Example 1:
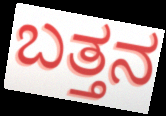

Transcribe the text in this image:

ಬತ್ತನ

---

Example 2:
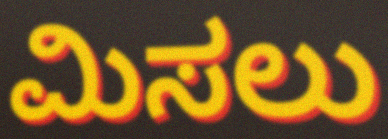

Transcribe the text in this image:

ಮಿಸಲು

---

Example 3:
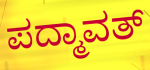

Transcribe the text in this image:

ಪದ್ಮಾವತ್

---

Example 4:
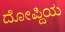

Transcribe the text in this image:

ದೋಪ್ದಿಯ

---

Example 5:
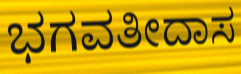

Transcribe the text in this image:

ಭಗವತೀದಾಸ